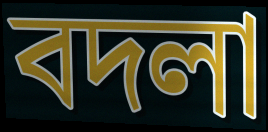
বদলা